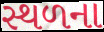
સ્થળના